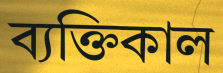
ব্যক্তিকাল